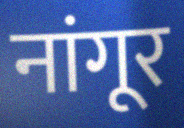
नांगूर